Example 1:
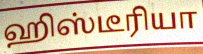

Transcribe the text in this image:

ஹிஸ்டீரியா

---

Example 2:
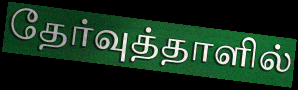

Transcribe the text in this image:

தேர்வுத்தாளில்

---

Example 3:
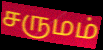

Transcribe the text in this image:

சருமம்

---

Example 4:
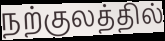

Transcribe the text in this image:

நற்குலத்தில்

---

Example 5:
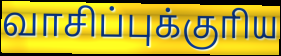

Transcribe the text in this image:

வாசிப்புக்குரிய